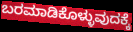
ಬರಮಾಡಿಕೊಳ್ಳುವುದಕ್ಕೆ